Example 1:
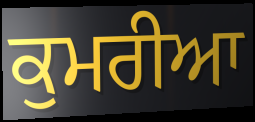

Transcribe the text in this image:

ਕੁਮਰੀਆ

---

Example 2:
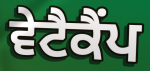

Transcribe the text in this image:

ਵੇਟੈਕੈਂਪ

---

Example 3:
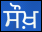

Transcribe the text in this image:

ਸੌਖ਼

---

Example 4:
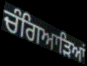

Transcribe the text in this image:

ਚੰਗਿਆੜਿਆਂ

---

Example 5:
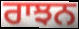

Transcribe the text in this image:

ਰਾਝਨ